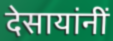
देसायांनीं